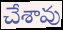
చేశావు